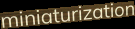
miniaturization